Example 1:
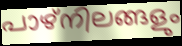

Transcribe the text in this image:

പാഴ്നിലങ്ങളും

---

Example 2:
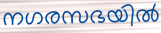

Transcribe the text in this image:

നഗരസഭയിൽ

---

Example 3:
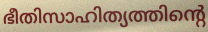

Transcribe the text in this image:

ഭീതിസാഹിത്യത്തിന്റെ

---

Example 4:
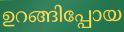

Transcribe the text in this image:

ഉറങ്ങിപ്പോയ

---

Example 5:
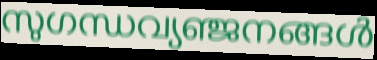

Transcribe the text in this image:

സുഗന്ധവ്യഞ്ജനങ്ങൾ